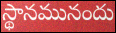
స్థానమునందు